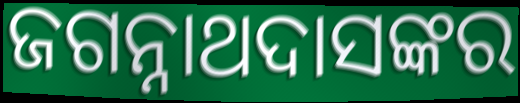
ଜଗନ୍ନାଥଦାସଙ୍କର